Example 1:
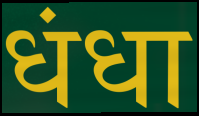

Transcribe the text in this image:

धंधा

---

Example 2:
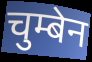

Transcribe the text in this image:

चुम्बेन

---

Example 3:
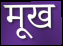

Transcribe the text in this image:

मूख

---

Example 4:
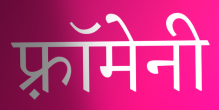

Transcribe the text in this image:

फ़्रॉमेनी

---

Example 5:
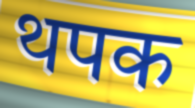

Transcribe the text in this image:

थपक